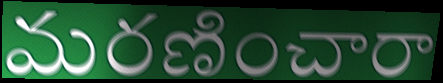
మరణించారా